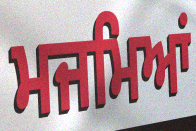
ਮਜਮਿਆਂ